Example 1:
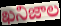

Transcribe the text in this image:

ఖనిజాల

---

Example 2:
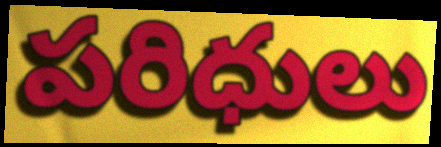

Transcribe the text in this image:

పరిధులు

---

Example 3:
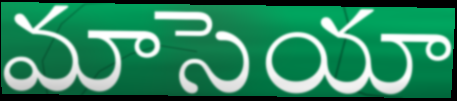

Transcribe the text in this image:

మాసెయా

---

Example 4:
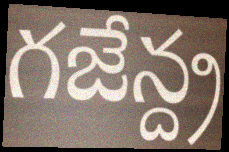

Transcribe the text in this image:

గజేన్ద్ర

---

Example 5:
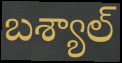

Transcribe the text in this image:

బశ్యాల్